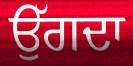
ਉੱਗਦਾ